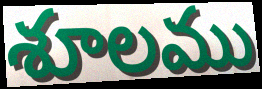
శూలము